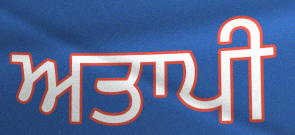
ਅਤਾਪੀ